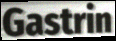
Gastrin